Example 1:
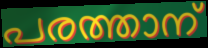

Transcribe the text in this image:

പരത്താന്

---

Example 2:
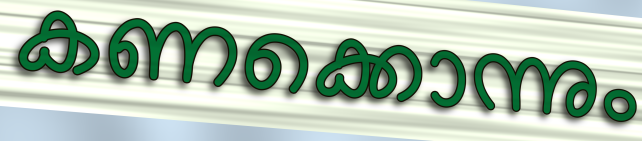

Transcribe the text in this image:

കണക്കൊന്നും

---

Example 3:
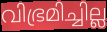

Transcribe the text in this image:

വിഭ്രമിച്ചില്ല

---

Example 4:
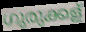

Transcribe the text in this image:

ഗുരുക്കള്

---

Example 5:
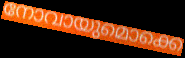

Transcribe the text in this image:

നോവായുമൊക്കെ